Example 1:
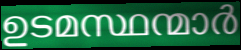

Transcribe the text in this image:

ഉടമസ്ഥന്മാർ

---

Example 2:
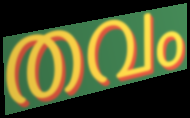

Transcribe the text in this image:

തവം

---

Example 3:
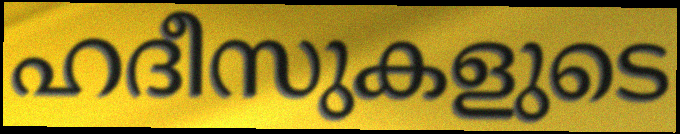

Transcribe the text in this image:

ഹദീസുകളുടെ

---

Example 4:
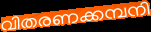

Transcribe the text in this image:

വിതരണക്കമ്പനി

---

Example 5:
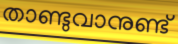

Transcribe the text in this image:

താണ്ടുവാനുണ്ട്